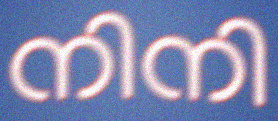
നിനി